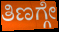
ತಿಣಗ್ಗೇ